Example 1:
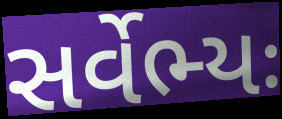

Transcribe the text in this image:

સર્વેભ્યઃ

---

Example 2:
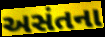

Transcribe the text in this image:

અસંતના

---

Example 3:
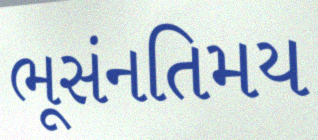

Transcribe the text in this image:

ભૂસંનતિમય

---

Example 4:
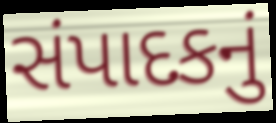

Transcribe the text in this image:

સંપાદકનું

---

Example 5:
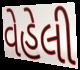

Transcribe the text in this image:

વેહેલી